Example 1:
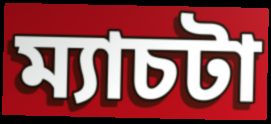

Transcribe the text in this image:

ম্যাচটা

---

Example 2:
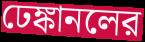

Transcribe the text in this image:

ঢেঙ্কানলের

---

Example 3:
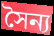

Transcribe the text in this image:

সৈন্য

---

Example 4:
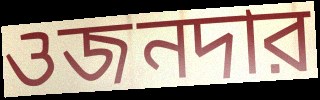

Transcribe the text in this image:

ওজনদার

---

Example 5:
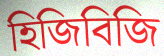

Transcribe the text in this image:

হিজিবিজি